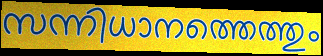
സന്നിധാനത്തെത്തും